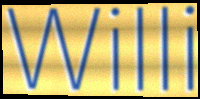
Willi